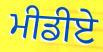
ਮੀਡੀਏ